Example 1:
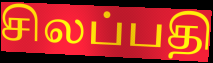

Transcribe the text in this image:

சிலப்பதி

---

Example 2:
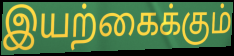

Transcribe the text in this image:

இயற்கைக்கும்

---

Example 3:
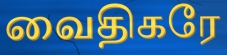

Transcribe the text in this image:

வைதிகரே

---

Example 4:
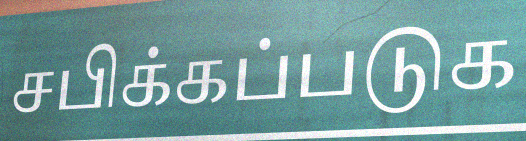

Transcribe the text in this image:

சபிக்கப்படுக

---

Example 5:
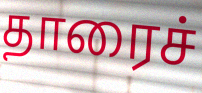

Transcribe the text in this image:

தாரைச்